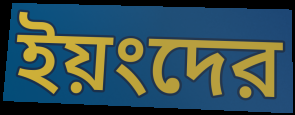
ইয়ংদের